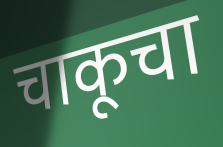
चाकूचा